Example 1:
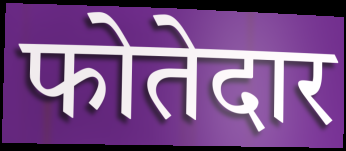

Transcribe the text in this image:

फोतेदार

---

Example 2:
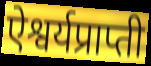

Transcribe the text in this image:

ऐश्वर्यप्राप्ती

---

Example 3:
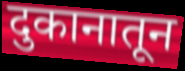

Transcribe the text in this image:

दुकानातून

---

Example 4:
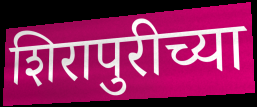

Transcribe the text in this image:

शिरापुरीच्या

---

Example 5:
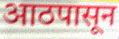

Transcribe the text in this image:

आठपासून